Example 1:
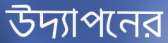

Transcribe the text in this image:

উদ্যাপনের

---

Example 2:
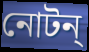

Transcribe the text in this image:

নোটন্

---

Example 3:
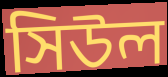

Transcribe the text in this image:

সিউল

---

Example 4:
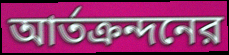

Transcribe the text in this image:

আর্তক্রন্দনের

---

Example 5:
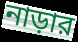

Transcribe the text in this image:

নাড়ার